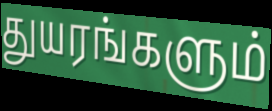
துயரங்களும்